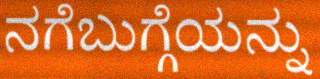
ನಗೆಬುಗ್ಗೆಯನ್ನು